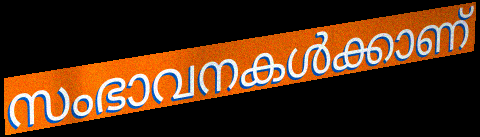
സംഭാവനകൾക്കാണ്